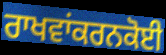
ਰਾਖਵਾਂਕਰਨਕੋਈ